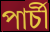
পাৰ্চী